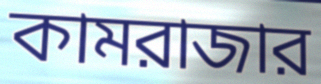
কামরাজার